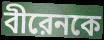
বীরেনকে